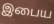
இபைய